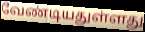
வேண்டியதுள்ளது